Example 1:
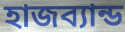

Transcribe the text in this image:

হাজব্যান্ড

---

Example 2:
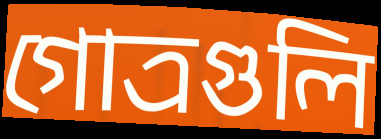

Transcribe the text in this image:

গোত্রগুলি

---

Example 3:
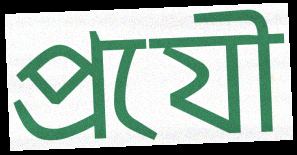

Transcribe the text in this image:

প্রযৌ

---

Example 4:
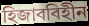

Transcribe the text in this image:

হিজাববিহীন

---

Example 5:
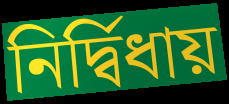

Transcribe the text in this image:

নির্দ্বিধায়